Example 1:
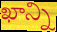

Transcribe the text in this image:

ఖాన్ని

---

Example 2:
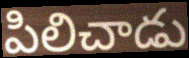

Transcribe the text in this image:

పిలిచాడు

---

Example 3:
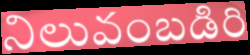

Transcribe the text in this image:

నిలువంబడిరి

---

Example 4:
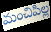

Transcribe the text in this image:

మంచిపిల్ల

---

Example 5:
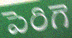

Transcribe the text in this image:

పెరిగె